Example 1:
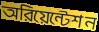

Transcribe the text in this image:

অরিয়েন্টেশন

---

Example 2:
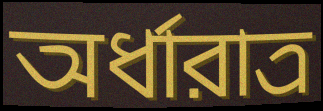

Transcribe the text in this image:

অর্ধারাত্র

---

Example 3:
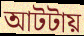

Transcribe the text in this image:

আটটায়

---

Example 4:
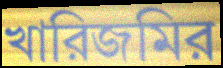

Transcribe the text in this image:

খারিজমির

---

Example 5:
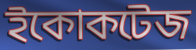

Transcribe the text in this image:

ইকোকটেজ